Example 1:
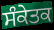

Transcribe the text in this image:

ਸੰਕੇਤਕ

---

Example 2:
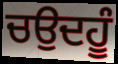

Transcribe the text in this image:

ਚਉਦਹੂੰ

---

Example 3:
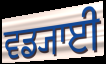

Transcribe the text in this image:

ਵਡ੍ਯਾਈ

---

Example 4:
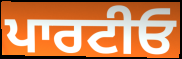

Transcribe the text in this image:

ਪਾਰਟੀਓ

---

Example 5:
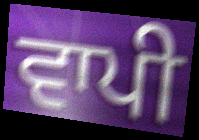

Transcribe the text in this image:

ਵਾਪੀ